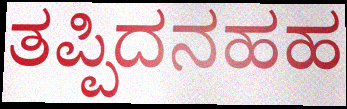
ತಪ್ಪಿದನಹಹ